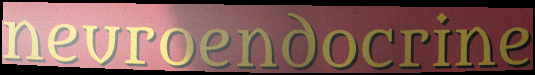
neuroendocrine